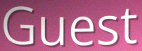
Guest